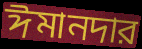
ঈমানদার